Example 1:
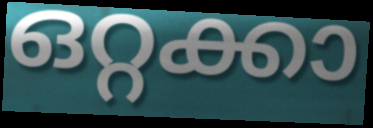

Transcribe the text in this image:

ഒറ്റക്കാ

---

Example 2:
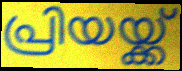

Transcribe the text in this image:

പ്രിയയ്ക്ക്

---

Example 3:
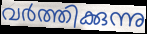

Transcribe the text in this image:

വർത്തിക്കുന്നു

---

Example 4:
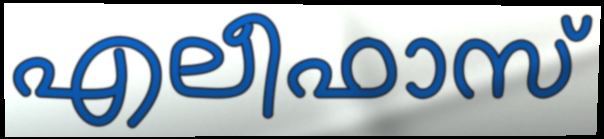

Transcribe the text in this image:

എലീഫാസ്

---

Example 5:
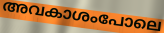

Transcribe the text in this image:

അവകാശംപോലെ